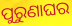
ପୁରୁଣାଘର